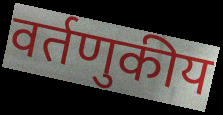
वर्तणुकीय